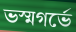
ভস্মগর্ভে